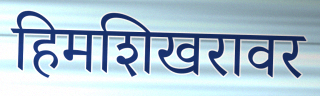
हिमशिखरावर